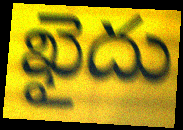
ఖైదు